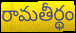
రామతీర్థం